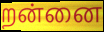
றன்னை